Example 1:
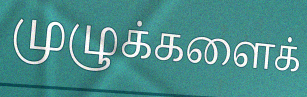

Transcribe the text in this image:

முழுக்களைக்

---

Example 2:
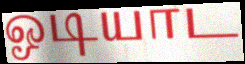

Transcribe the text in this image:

ஓடியாட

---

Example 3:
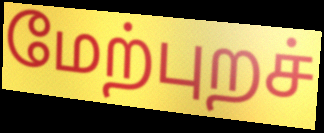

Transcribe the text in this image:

மேற்புறச்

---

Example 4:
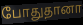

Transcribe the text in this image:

போதுதானா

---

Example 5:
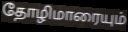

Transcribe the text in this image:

தோழிமாரையும்